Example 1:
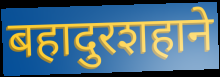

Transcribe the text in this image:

बहादुरशहाने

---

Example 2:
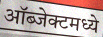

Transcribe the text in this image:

ऑब्जेक्टमध्ये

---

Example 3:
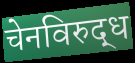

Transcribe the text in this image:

चेनविरुद्ध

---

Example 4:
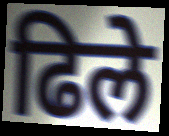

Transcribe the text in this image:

ढिले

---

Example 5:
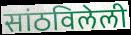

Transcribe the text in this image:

सांठविलेली